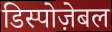
डिस्पोज़ेबल